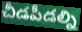
చీడపీడల్ని